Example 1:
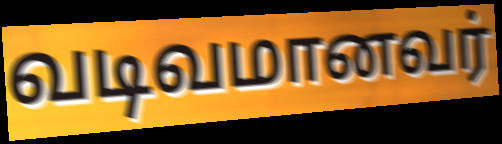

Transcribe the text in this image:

வடிவமானவர்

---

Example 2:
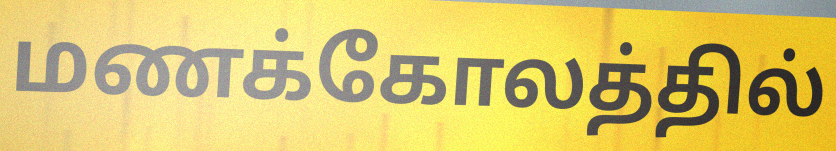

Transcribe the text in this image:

மணக்கோலத்தில்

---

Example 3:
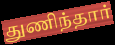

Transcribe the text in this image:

துணிந்தார்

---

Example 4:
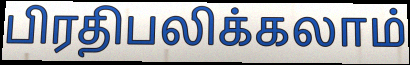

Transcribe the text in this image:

பிரதிபலிக்கலாம்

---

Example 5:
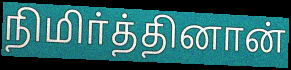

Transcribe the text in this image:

நிமிர்த்தினான்